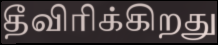
தீவிரிக்கிறது